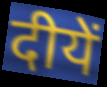
दीयें